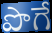
పొగే